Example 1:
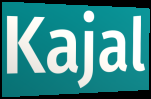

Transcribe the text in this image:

Kajal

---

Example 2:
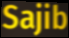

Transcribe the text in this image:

Sajib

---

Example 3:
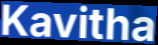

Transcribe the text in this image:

Kavitha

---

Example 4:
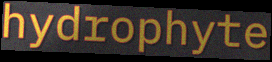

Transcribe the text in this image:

hydrophyte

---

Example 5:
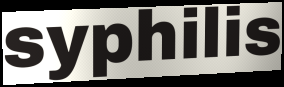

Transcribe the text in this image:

syphilis